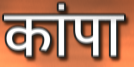
कांपा